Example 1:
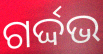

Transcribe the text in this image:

ଗର୍ଦ୍ଦଭ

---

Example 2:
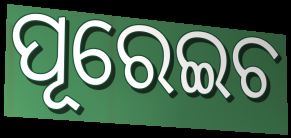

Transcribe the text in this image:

ପୂରେଇଚ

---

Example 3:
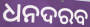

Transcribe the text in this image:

ଧନଦରବ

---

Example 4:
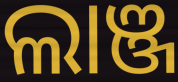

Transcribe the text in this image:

ଲାଞ୍ଜ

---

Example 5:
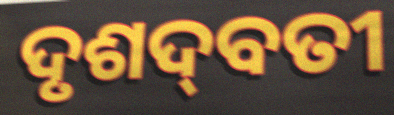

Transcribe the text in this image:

ଦୃଶଦ୍‌ବତୀ